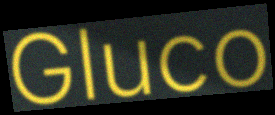
Gluco